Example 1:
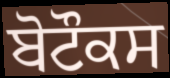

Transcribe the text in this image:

ਬੋਟੌਕਸ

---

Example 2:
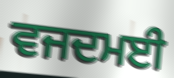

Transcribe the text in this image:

ਵਜਦਮਈ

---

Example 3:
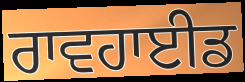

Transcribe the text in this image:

ਰਾਵਹਾਈਡ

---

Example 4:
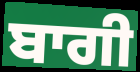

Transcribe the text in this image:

ਬਾਗੀ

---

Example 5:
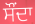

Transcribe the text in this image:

ਸੌਂਦਾ